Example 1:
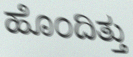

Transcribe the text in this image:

ಹೊಂದಿತ್ತು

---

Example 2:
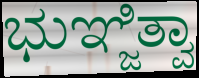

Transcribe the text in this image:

ಭುಞ್ಜಿತ್ವಾ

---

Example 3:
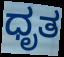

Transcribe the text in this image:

ಧೃತ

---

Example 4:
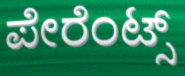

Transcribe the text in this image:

ಪೇರೆಂಟ್ಸ್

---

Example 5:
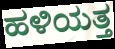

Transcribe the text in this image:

ಹಳಿಯತ್ತ